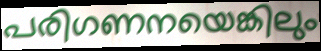
പരിഗണനയെങ്കിലും